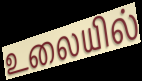
உலையில்